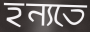
হন্যতে